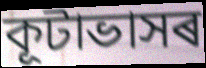
কূটাভাসৰ